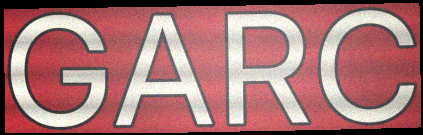
GARC